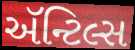
ઍન્ટિલ્સ